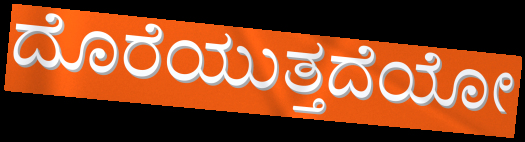
ದೊರೆಯುತ್ತದೆಯೋ